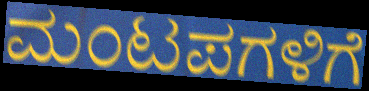
ಮಂಟಪಗಳಿಗೆ